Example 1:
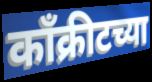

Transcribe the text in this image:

काँक्रीटच्या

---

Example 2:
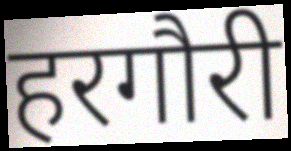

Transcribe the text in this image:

हरगौरी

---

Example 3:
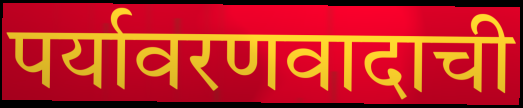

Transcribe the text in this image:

पर्यावरणवादाची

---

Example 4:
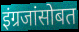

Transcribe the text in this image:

इंग्रजांसोबत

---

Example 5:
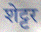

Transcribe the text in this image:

शेट्टर